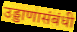
उड्डाणासंबंधी